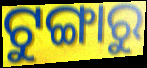
ଟୁଙ୍ଗାରୁ